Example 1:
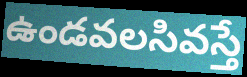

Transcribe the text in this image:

ఉండవలసివస్తే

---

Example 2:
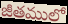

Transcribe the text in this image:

జీతములో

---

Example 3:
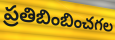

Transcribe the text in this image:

ప్రతిబింబించగల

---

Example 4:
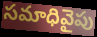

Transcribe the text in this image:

సమాధివైపు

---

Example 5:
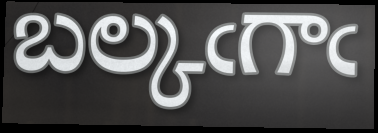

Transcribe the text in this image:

బల్కఁగాఁ